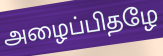
அழைப்பிதழே